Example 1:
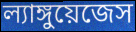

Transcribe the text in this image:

ল্যাঙ্গুয়েজেস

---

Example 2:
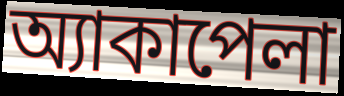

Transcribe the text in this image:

অ্যাকাপেলা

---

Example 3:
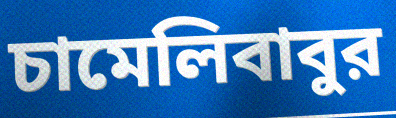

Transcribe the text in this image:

চামেলিবাবুর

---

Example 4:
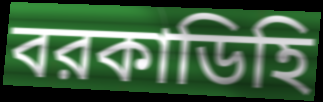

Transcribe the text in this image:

বরকাডিহি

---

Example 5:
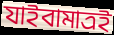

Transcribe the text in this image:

যাইবামাত্রই